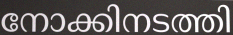
നോക്കിനടത്തി